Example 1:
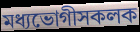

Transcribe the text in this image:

মধ্যভোগীসকলক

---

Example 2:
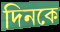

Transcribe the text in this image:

দিনকে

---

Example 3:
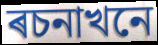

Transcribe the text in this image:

ৰচনাখনে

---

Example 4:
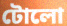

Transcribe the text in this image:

টোলো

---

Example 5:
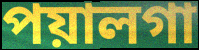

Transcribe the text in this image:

পয়ালগা